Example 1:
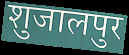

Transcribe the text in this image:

शुजालपुर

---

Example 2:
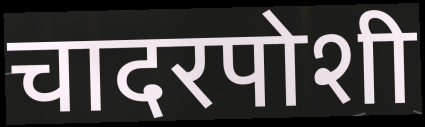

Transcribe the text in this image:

चादरपोशी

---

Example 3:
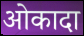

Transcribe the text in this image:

ओकादा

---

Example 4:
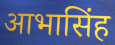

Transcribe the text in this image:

आभासिंह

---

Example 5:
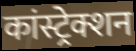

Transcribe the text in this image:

कांस्ट्रेक्शन